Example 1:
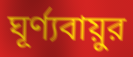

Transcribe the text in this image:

ঘূর্ণ্যবায়ুর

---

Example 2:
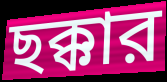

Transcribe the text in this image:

ছক্কার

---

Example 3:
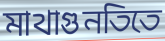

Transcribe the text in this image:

মাথাগুনতিতে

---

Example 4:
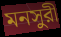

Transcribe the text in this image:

মনসুরী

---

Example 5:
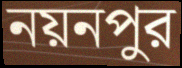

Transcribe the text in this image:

নয়নপুর